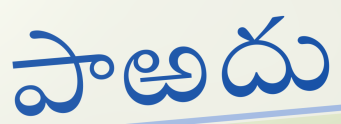
పాఱదు